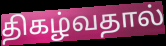
திகழ்வதால்